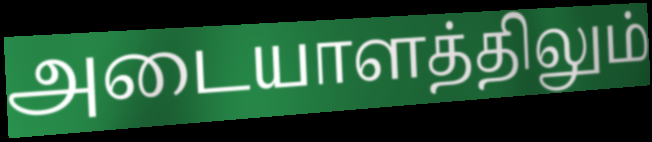
அடையாளத்திலும்